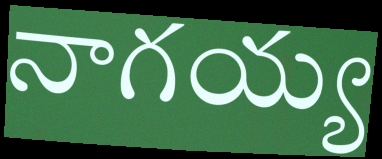
నాగయ్య